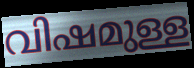
വിഷമുള്ള